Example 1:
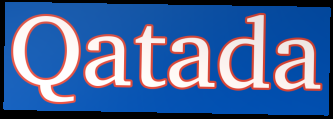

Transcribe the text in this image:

Qatada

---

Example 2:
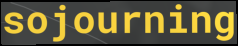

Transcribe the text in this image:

sojourning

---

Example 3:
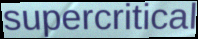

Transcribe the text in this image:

supercritical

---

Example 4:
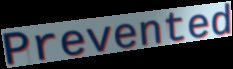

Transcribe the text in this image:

Prevented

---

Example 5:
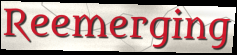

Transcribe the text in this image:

Reemerging